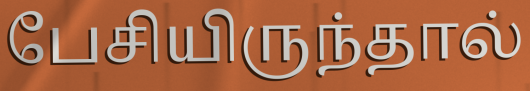
பேசியிருந்தால்